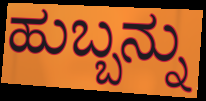
ಹುಬ್ಬನ್ನು